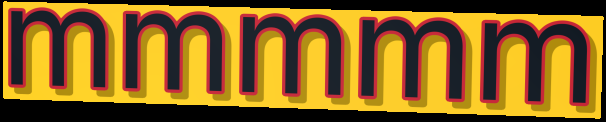
mmmmm